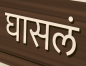
घासलं